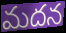
మదన